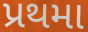
પ્રથમા